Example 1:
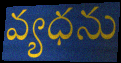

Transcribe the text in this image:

వ్యధను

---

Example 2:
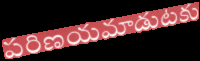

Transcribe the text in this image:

పరిణయమాడుటకు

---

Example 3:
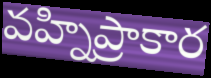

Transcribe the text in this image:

వహ్నిప్రాకార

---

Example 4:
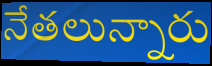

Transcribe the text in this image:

నేతలున్నారు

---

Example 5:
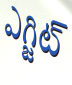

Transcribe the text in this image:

ఎగ్జిట్